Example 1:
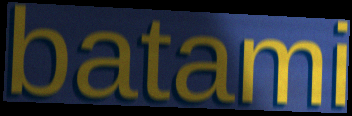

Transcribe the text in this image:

batami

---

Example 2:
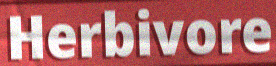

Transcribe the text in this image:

Herbivore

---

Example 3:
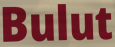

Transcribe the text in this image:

Bulut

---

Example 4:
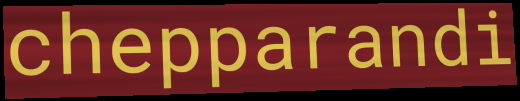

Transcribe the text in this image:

chepparandi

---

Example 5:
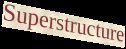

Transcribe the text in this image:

Superstructure